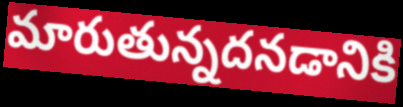
మారుతున్నదనడానికి